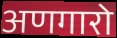
अणगारो